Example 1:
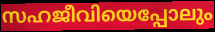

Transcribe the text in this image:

സഹജീവിയെപ്പോലും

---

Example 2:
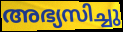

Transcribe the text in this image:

അഭ്യസിച്ചു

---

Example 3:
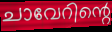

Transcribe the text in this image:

ചാവേറിന്റെ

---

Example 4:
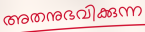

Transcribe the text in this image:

അതനുഭവിക്കുന്ന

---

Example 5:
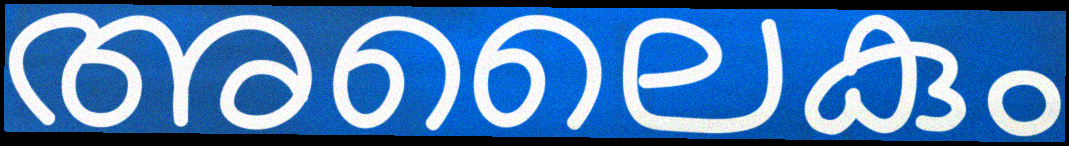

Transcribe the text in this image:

അലൈകും